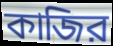
কাজির